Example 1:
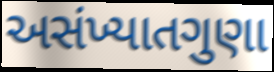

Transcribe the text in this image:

અસંખ્યાતગુણા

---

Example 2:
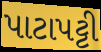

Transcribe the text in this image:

પાટાપટ્ટી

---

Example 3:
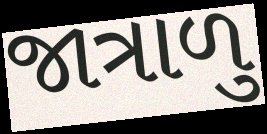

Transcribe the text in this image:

જાત્રાળુ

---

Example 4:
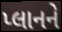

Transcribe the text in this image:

પ્લાનને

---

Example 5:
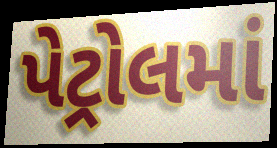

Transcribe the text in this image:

પેટ્રોલમાં